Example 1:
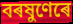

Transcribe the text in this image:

বৰষুণেৰে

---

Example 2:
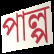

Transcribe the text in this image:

পাল্প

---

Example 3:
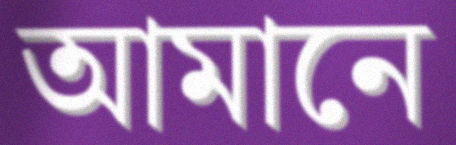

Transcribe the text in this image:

আমানে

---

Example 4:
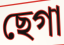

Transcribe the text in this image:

ছেগা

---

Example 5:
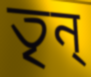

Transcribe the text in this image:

তৃন্